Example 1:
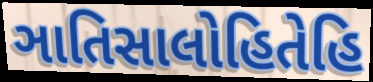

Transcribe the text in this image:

ઞાતિસાલોહિતેહિ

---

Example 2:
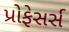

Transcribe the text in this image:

પ્રોફેસર્સ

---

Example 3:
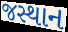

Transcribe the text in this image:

જસ્થાન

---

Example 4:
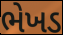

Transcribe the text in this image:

ભેખડ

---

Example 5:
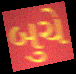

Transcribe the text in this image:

બુચે